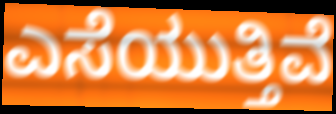
ಎಸೆಯುತ್ತಿವೆ